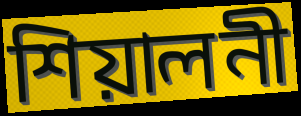
শিয়ালনী